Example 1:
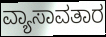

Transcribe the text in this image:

ವ್ಯಾಸಾವತಾರ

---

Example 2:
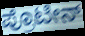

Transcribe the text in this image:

ಪ್ರೊಟೀನ್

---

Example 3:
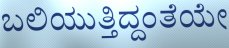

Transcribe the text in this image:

ಬಲಿಯುತ್ತಿದ್ದಂತೆಯೇ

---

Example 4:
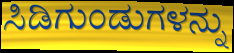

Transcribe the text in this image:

ಸಿಡಿಗುಂಡುಗಳನ್ನು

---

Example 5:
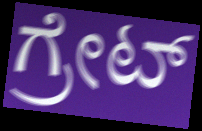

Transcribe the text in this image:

ಗ್ರೇಟ್